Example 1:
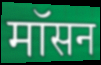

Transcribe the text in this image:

मॉसन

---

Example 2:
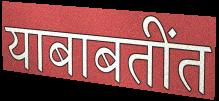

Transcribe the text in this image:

याबाबतींत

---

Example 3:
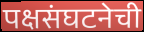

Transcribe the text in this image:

पक्षसंघटनेची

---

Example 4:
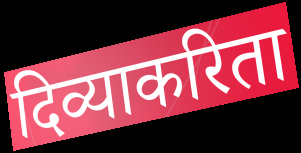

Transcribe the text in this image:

दिव्याकरिता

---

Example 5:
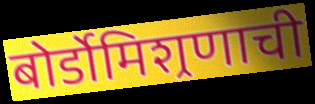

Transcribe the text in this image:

बोर्डोमिश्रणाची